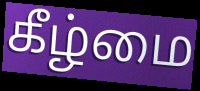
கீழ்மை